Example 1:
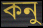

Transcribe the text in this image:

কনু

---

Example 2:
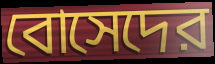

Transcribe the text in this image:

বোসেদের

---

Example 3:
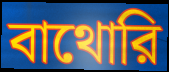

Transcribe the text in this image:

বাথোরি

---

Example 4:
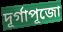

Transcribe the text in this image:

দূর্গাপূজো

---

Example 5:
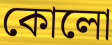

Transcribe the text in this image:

কোলো